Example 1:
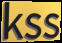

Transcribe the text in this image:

kss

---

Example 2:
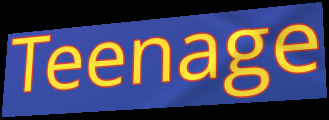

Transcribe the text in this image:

Teenage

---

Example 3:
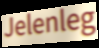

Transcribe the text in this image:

Jelenleg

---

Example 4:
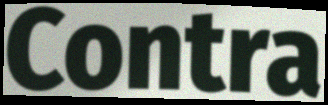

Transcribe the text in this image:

Contra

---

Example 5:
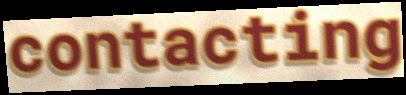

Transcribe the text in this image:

contacting